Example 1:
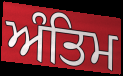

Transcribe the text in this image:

ਅੰਤਿਮ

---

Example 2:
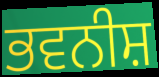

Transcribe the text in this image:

ਭਵਨੀਸ਼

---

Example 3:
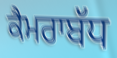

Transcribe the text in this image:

ਕੈਮਰਾਬੱਧ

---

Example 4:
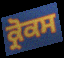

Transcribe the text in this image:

ਕ੍ਰੋਕਸ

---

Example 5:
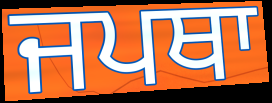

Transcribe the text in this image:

ਜਪਥਾ